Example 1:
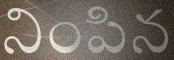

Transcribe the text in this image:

నింపిన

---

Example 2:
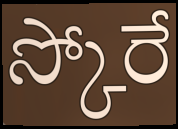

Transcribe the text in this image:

స్కోరే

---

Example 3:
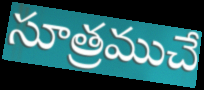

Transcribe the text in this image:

సూత్రముచే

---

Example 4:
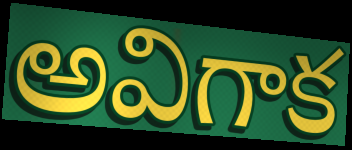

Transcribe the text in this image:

అవిగాక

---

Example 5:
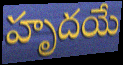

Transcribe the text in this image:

హృదయే